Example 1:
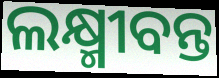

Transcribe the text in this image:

ଲକ୍ଷ୍ମୀବନ୍ତ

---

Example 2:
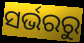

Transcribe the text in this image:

ସର୍ଭରରୁ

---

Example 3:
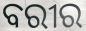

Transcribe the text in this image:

ବରୀର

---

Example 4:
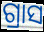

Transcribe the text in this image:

ଗ୍ରାସ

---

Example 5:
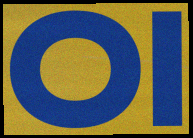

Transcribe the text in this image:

ଠା